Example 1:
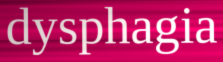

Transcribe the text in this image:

dysphagia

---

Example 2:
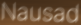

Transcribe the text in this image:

Nausad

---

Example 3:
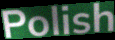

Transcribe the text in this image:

Polish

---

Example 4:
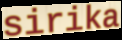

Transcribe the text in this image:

sirika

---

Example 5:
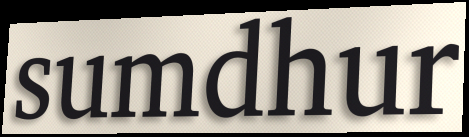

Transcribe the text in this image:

sumdhur